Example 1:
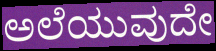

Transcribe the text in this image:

ಅಲೆಯುವುದೇ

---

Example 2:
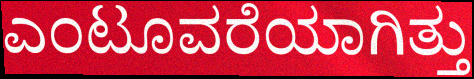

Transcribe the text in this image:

ಎಂಟೂವರೆಯಾಗಿತ್ತು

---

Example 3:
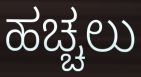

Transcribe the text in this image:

ಹಚ್ಚಲು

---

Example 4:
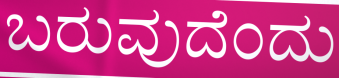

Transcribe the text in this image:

ಬರುವುದೆಂದು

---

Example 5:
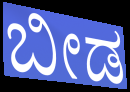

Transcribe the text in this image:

ಬೀಡ